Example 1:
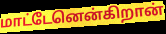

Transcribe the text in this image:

மாட்டேனென்கிறான்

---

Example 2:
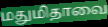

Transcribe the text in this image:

மதுமிதாவை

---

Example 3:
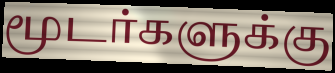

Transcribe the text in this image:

மூடர்களுக்கு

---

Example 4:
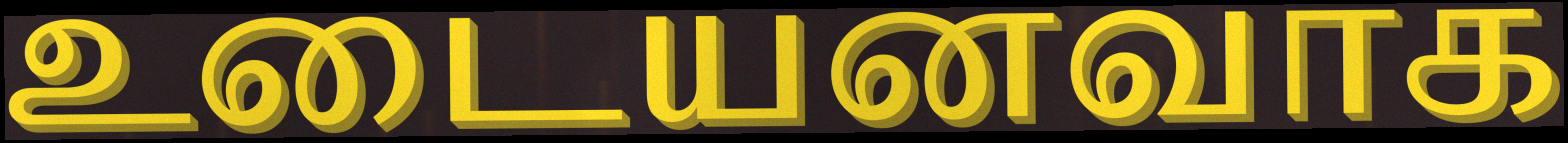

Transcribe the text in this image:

உடையனவாக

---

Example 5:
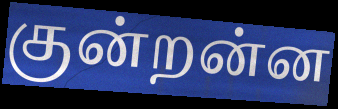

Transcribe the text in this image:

குன்றன்ன